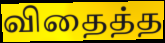
விதைத்த